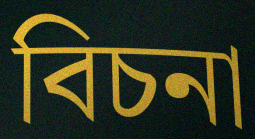
বিচনা